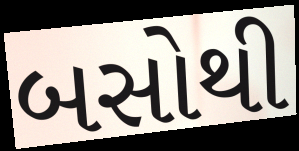
બસોથી